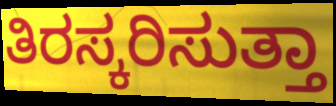
ತಿರಸ್ಕರಿಸುತ್ತಾ